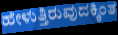
ಹೇಳುತ್ತಿರುವುದಕ್ಕಿಂತ